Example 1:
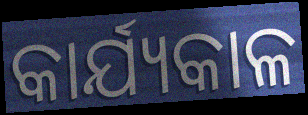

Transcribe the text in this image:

କାର୍ଯ୍ୟକାଳ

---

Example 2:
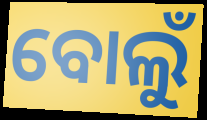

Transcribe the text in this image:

ବୋଲୁଁ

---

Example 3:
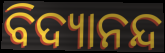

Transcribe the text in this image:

ବିଦ୍ୟାନନ୍ଦ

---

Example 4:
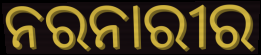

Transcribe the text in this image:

ନରନାରୀର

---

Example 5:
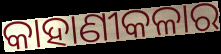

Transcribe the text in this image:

କାହାଣୀକଳାର